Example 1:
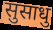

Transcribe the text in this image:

सुसाधु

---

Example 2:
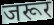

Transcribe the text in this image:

जरूर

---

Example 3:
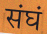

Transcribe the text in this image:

संघं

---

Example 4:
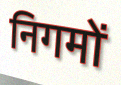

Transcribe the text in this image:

निगमों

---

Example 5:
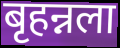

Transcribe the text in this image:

बृहन्नला